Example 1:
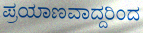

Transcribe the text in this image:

ಪ್ರಯಾಣವಾದ್ದರಿಂದ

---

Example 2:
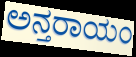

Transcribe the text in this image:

ಅನ್ತರಾಯಂ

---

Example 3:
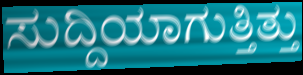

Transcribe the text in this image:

ಸುದ್ದಿಯಾಗುತ್ತಿತ್ತು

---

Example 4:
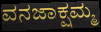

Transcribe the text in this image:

ವನಜಾಕ್ಷಮ್ಮ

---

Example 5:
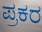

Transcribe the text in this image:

ಪ್ರಕರ